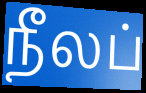
நீலப்